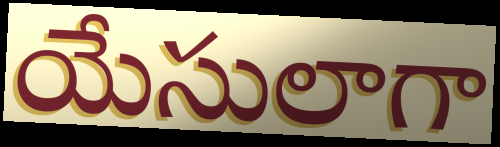
యేసులాగా